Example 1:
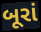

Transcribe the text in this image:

બૂરાં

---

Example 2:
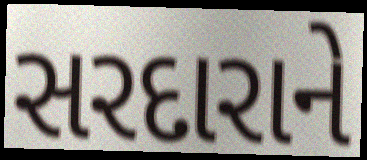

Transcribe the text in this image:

સરદારાને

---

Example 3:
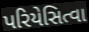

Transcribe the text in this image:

પરિયેસિત્વા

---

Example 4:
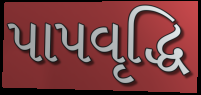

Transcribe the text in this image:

પાપવૃદ્ધિ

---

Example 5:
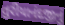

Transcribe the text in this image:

તુરીયાનંદજીનું